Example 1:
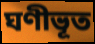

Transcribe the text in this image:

ঘণীভূত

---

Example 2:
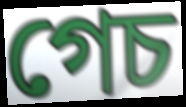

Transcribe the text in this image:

গেচ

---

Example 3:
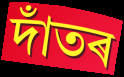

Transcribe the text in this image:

দাঁতৰ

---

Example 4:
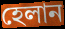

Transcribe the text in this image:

হেলান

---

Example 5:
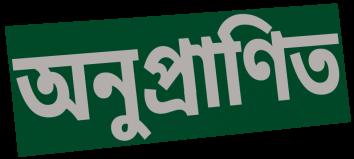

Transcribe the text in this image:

অনুপ্ৰাণিত